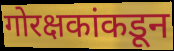
गोरक्षकांकडून